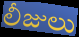
లీజులు